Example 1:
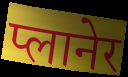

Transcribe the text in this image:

प्लानेर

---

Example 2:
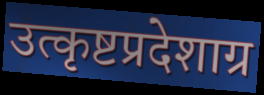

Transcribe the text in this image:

उत्कृष्टप्रदेशाग्र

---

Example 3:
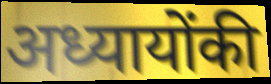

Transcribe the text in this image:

अध्यायोंकी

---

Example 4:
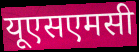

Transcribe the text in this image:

यूएसएमसी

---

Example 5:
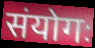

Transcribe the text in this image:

संयोगः